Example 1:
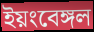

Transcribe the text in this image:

ইয়ংবেঙ্গল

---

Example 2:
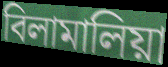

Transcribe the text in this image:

বিলামালিয়া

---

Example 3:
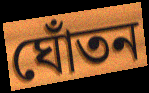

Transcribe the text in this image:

ঘোঁতন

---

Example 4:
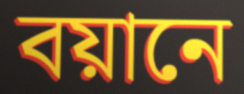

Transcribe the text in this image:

বয়ানে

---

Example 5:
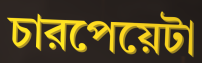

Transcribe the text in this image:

চারপেয়েটা